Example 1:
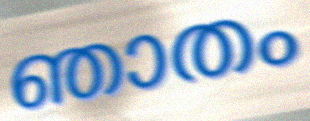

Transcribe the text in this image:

ഞാതം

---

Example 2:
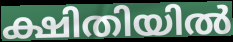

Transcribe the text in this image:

ക്ഷിതിയിൽ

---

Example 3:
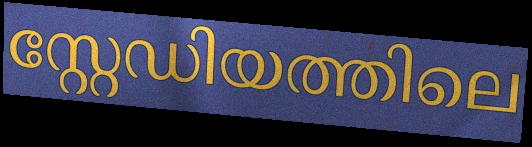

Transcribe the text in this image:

സ്റ്റേഡിയത്തിലെ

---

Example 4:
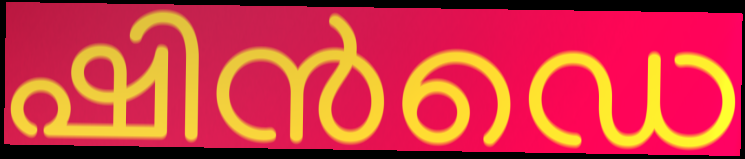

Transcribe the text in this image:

ഷിൻഡെ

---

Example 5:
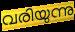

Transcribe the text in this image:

വരിയുന്നു